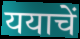
ययाचें